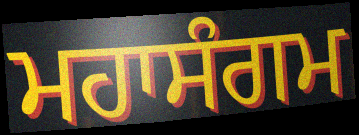
ਮਹਾਸੰਗਮ